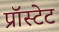
प्रॉस्टेट